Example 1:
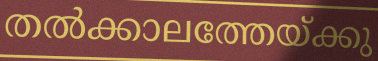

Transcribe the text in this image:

തൽക്കാലത്തേയ്ക്കു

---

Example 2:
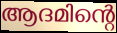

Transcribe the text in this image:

ആദമിന്റെ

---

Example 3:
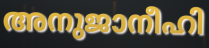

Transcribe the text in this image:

അനുജാനീഹി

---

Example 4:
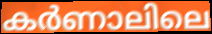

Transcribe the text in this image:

കർണാലിലെ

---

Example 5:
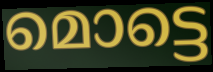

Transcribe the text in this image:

മൊട്ടെ